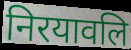
निरयावलि